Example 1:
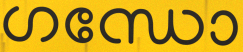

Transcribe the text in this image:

ഗന്ധോ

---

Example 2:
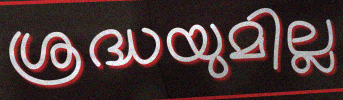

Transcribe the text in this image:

ശ്രദ്ധയുമില്ല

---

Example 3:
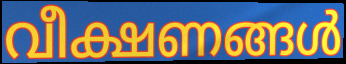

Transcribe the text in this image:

വീക്ഷണങ്ങൾ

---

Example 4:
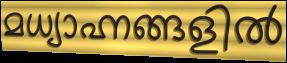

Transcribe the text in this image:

മധ്യാഹ്നങ്ങളിൽ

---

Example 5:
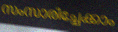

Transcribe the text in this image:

സംസാരിച്ചേക്കാം